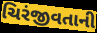
ચિરંજીવતાની